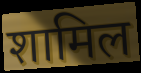
शामिल